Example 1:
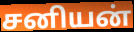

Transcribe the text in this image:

சனியன்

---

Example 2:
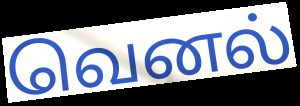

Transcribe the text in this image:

வெனல்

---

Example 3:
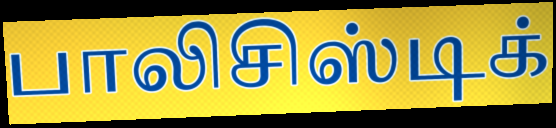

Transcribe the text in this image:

பாலிசிஸ்டிக்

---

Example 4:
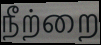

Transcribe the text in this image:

நீற்றை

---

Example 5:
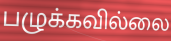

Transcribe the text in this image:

பழுக்கவில்லை